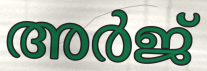
അർജ്